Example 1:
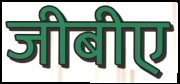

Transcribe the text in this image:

जीबीए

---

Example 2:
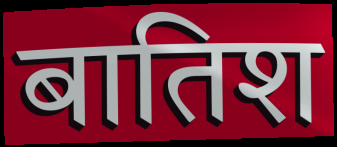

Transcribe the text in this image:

बातिश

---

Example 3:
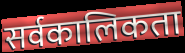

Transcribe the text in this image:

सर्वकालिकता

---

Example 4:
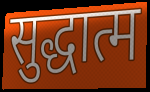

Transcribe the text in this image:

सुद्धात्म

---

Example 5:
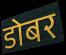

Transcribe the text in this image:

डोबर